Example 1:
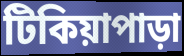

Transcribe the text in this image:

টিকিয়াপাড়া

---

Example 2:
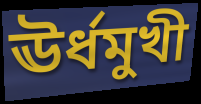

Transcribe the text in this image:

ঊর্ধমুখী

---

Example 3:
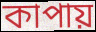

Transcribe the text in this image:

কাপায়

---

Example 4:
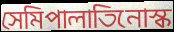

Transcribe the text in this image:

সেমিপালাতিনোস্ক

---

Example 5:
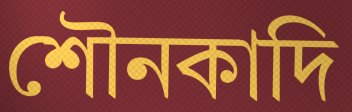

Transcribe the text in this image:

শৌনকাদি